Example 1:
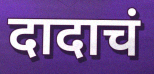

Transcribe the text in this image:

दादाचं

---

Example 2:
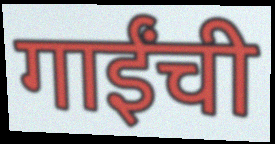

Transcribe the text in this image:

गाईंची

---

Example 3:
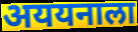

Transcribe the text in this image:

अययनाला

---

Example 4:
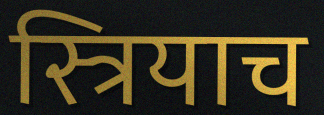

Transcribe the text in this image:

स्त्रियाच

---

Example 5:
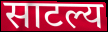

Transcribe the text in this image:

साटल्य